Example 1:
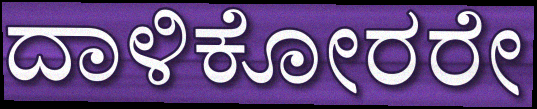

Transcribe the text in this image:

ದಾಳಿಕೋರರೇ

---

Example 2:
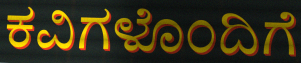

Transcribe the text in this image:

ಕವಿಗಳೊಂದಿಗೆ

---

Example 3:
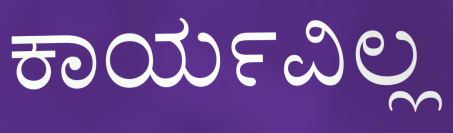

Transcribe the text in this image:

ಕಾರ್ಯವಿಲ್ಲ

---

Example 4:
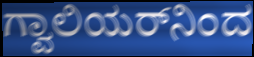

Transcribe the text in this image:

ಗ್ವಾಲಿಯರ್‌ನಿಂದ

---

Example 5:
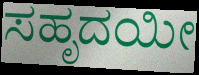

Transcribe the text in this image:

ಸಹೃದಯೀ